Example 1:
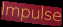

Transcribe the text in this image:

Impulse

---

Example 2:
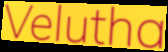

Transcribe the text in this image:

Velutha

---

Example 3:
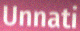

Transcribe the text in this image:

Unnati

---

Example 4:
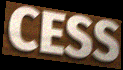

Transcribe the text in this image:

CESS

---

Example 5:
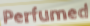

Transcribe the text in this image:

Perfumed